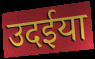
उदईया